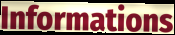
Informations